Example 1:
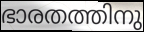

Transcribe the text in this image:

ഭാരതത്തിനു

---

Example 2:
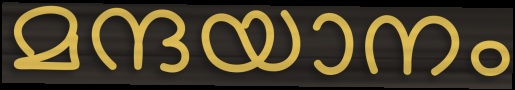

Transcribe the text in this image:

മന്ദയാനം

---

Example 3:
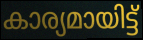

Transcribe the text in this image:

കാര്യമായിട്ട്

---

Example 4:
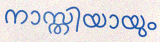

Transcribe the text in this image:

നാസ്തിയായും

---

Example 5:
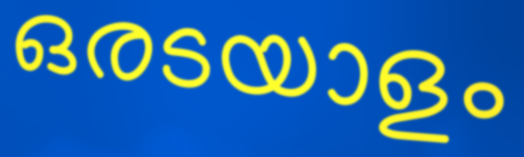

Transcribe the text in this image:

ഒരടയാളം